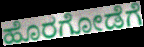
ಹೊರಗೋಡೆಗೆ